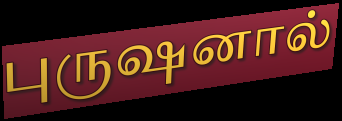
புருஷனால்